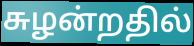
சுழன்றதில்